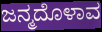
ಜನ್ಮದೊಳಾವ